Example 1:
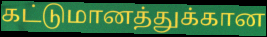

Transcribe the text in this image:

கட்டுமானத்துக்கான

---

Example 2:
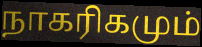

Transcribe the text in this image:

நாகரிகமும்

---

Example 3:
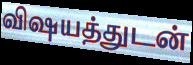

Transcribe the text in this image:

விஷயத்துடன்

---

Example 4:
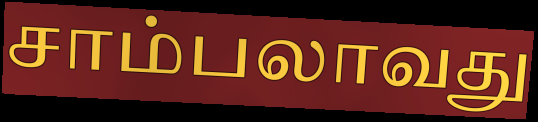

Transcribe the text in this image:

சாம்பலாவது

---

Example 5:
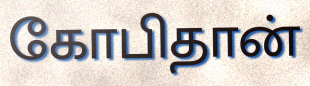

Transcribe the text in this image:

கோபிதான்